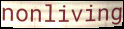
nonliving